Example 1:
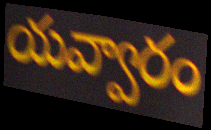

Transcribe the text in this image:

యవ్వారం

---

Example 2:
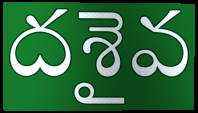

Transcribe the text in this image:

దశైవ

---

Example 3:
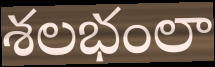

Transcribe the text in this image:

శలభంలా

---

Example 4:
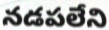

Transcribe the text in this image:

నడపలేని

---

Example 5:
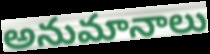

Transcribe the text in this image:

అనుమానాలు